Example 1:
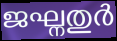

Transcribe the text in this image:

ജഘ്നതുർ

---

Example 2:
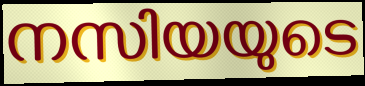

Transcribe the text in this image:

നസിയയുടെ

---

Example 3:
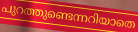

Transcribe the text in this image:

പുറത്തുണ്ടെന്നറിയാതെ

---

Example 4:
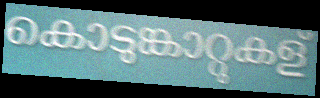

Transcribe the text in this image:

കൊടുങ്കാറ്റുകള്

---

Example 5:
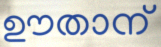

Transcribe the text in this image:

ഊതാന്